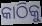
କାଠିକୁ